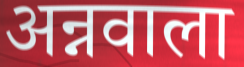
अन्नवाला